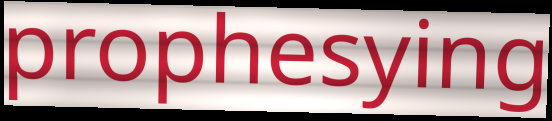
prophesying